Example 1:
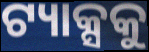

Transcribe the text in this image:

ଟ୍ୟାକ୍ସକୁ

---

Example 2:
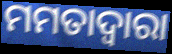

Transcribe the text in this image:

ମମତାଦ୍ୱାରା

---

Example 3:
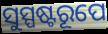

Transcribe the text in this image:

ସୁସ୍ପଷ୍ଟରୂପେ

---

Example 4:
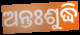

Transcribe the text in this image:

ଅନ୍ତଃଶୁଦ୍ଧି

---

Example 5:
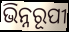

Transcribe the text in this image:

ଭିନ୍ନରୂପୀ